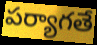
పర్యాగతే